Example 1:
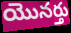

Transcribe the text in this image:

యొనర్తు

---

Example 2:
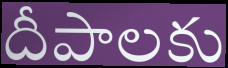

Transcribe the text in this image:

దీపాలకు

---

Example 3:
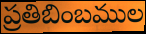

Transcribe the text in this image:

ప్రతిబింబముల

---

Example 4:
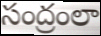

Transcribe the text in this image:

సంద్రంలా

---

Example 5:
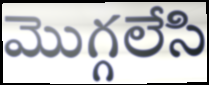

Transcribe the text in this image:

మొగ్గలేసి